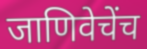
जाणिवेचेंच